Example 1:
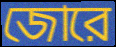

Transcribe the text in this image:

জোরে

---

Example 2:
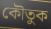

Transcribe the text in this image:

কৌতুক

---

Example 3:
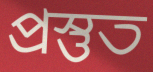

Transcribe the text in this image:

প্রস্তুত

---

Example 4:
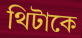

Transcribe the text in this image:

থিটাকে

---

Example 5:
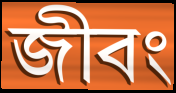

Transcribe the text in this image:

জীবং